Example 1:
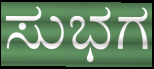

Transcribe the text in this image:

ಸುಭಗ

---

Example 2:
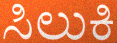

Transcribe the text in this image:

ಸಿಲುಕಿ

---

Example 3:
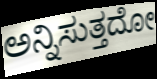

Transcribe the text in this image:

ಅನ್ನಿಸುತ್ತದೋ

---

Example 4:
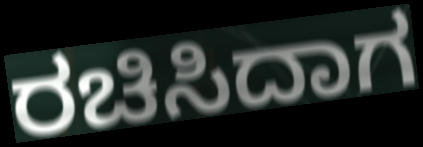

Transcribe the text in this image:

ರಚಿಸಿದಾಗ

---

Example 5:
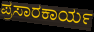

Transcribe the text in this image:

ಪ್ರಸಾರಕಾರ್ಯ